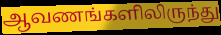
ஆவணங்களிலிருந்து